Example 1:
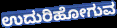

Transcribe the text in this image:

ಉದುರಿಹೋಗುವ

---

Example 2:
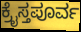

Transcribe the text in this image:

ಕ್ರೈಸ್ತಪೂರ್ವ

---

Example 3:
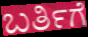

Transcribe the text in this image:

ಬರ್ತಿಗೆ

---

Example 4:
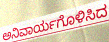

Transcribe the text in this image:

ಅನಿವಾರ್ಯಗೊಳಿಸಿದ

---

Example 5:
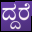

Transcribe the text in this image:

ದ್ದರೆ